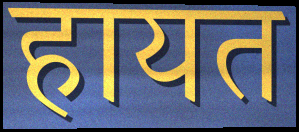
हायत